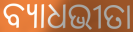
ବ୍ୟାଧଭୀତା